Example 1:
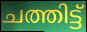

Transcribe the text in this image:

ചത്തിട്ട്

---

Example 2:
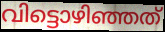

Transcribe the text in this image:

വിട്ടൊഴിഞ്ഞത്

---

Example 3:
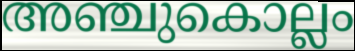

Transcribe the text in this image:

അഞ്ചുകൊല്ലം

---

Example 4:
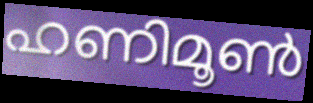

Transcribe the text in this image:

ഹണിമൂൺ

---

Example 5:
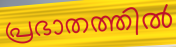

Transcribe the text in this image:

പ്രഭാതത്തിൽ